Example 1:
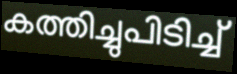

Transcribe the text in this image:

കത്തിച്ചുപിടിച്ച്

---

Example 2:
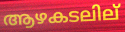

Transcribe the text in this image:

ആഴകടലില്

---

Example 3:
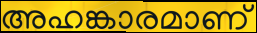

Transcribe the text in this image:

അഹങ്കാരമാണ്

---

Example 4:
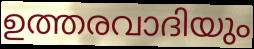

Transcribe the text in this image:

ഉത്തരവാദിയും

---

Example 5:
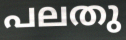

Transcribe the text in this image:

പലതു